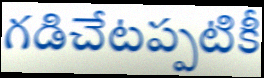
గడిచేటప్పటికీ